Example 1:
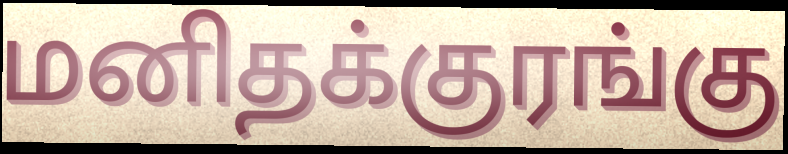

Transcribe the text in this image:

மனிதக்குரங்கு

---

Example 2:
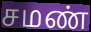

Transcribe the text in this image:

சமண்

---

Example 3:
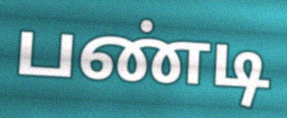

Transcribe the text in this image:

பண்டி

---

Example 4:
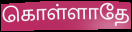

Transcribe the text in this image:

கொள்ளாதே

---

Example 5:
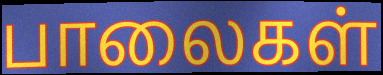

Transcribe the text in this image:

பாலைகள்